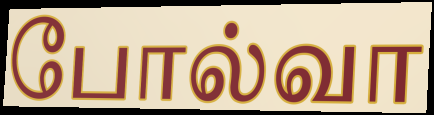
போல்வா